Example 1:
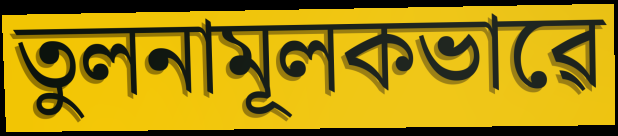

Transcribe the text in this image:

তুলনামূলকভাৱে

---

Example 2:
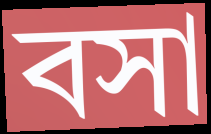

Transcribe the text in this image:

বসা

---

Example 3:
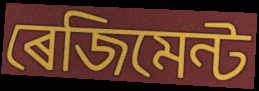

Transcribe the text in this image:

ৰেজিমেন্ট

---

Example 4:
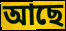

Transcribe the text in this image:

আছে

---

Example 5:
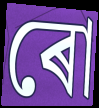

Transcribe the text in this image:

ৰো